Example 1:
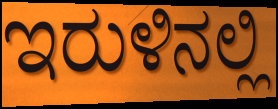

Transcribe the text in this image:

ಇರುಳಿನಲ್ಲಿ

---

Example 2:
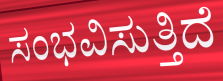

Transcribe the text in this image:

ಸಂಭವಿಸುತ್ತಿದೆ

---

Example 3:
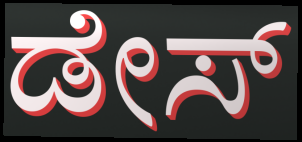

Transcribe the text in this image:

ಡೇಸ್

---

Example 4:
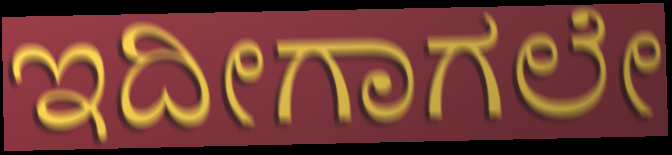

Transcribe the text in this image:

ಇದೀಗಾಗಲೇ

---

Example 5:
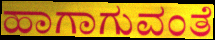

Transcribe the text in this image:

ಹಾಗಾಗುವಂತೆ